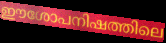
ഈശോപനിഷത്തിലെ